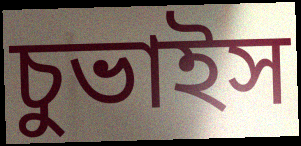
চুভাইস